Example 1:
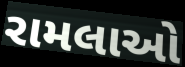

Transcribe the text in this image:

રામલાઓ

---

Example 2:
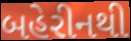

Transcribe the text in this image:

બહેરીનથી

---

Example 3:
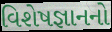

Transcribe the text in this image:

વિશેષજ્ઞાનનો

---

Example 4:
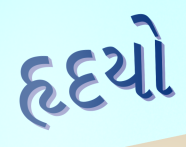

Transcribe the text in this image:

હૃદયો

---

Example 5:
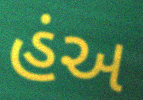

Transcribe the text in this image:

હંઅ